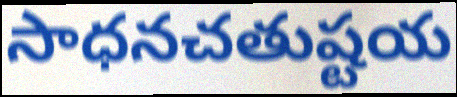
సాధనచతుష్టయ